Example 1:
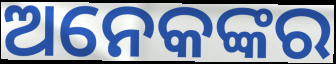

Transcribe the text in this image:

ଅନେକଙ୍କର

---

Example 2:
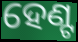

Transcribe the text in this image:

ହେଣ୍ଟ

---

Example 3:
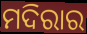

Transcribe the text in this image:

ମଦିରାର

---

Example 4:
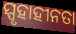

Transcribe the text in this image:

ସ୍ପୃହାହୀନତା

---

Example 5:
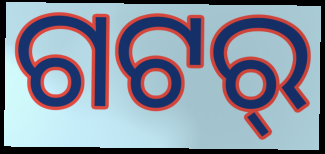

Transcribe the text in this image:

ଗଟର୍